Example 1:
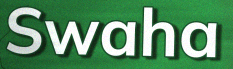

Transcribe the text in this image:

Swaha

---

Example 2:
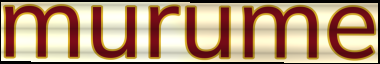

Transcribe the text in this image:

murume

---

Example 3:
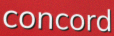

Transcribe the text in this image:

concord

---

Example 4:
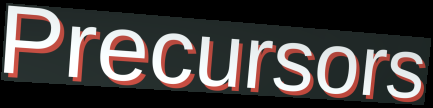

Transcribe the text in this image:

Precursors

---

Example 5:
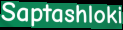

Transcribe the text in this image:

Saptashloki